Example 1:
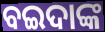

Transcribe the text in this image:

ବଇଦାଙ୍କ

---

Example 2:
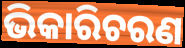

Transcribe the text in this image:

ଭିକାରିଚରଣ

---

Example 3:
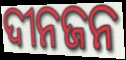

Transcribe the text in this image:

ଦୀନଜନ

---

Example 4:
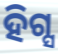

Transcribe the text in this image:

ହିଗ୍ସ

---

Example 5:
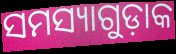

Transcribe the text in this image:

ସମସ୍ୟାଗୁଡ଼ାକ